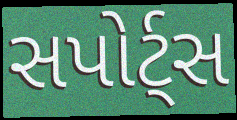
સપોર્ટ્સ